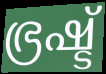
ഭ്രഷ്ട്